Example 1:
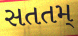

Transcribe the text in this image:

સતતમ્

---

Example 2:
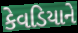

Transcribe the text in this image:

કેવડિયાને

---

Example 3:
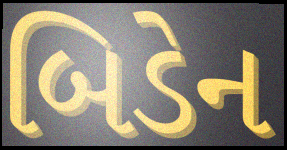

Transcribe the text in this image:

બિડેન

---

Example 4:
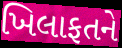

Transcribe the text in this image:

ખિલાફતને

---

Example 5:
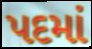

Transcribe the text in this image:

પદમાં